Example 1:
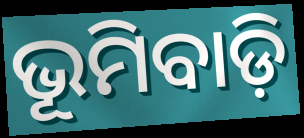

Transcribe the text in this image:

ଭୂମିବାଡ଼ି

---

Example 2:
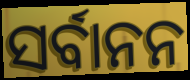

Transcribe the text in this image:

ସର୍ବାନନ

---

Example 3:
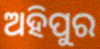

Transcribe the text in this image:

ଅହିପୁର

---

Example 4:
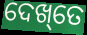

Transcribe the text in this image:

ଦେଖ୍‌ତେ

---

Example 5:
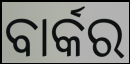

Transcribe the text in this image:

ବାର୍କର